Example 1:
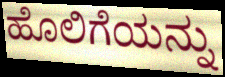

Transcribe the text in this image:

ಹೊಲಿಗೆಯನ್ನು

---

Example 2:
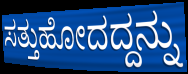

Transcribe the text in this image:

ಸತ್ತುಹೋದದ್ದನ್ನು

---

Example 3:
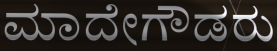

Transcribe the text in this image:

ಮಾದೇಗೌಡರು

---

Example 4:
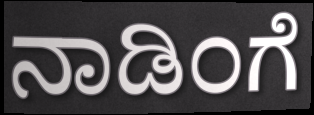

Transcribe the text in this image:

ನಾಡಿಂಗೆ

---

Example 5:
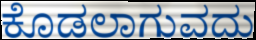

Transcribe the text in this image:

ಕೊಡಲಾಗುವದು